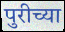
पुरीच्या